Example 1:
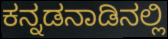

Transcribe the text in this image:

ಕನ್ನಡನಾಡಿನಲ್ಲಿ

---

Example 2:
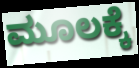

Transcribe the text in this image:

ಮೂಲಕ್ಕೆ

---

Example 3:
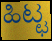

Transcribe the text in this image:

ಹಿಟ್ಟ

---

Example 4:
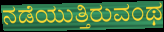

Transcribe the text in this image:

ನಡೆಯುತ್ತಿರುವಂಥ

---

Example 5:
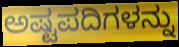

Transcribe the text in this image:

ಅಷ್ಟಪದಿಗಳನ್ನು